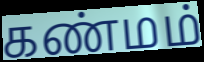
கண்மம்